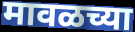
मावळच्या